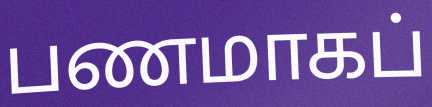
பணமாகப்